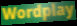
Wordplay